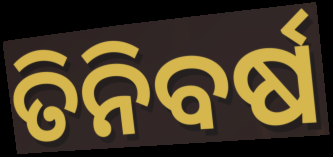
ତିନିବର୍ଷ